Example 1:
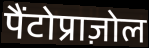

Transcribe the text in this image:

पैंटोप्राज़ोल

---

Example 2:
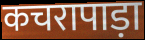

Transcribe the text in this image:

कचरापाड़ा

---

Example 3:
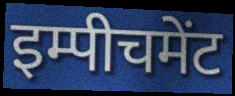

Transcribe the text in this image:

इम्पीचमेंट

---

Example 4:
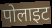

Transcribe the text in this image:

पोलाइट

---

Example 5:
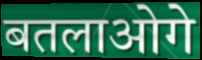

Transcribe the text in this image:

बतलाओगे